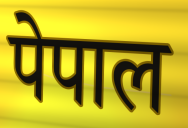
पेपाल